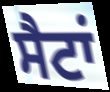
ਸੈਟਾਂ